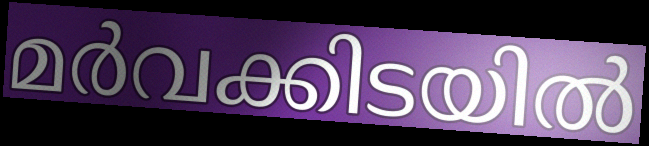
മർവക്കിടയിൽ